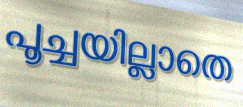
പൂച്ചയില്ലാതെ